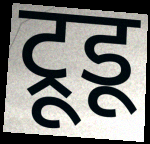
ट्रूडू